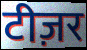
टीज़र